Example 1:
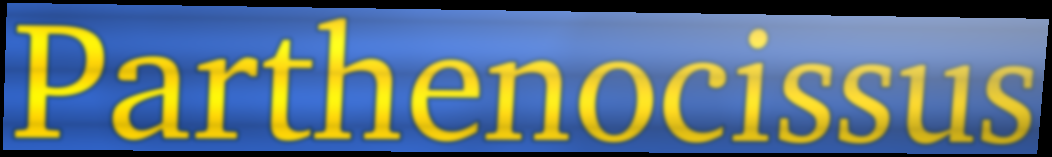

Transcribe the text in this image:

Parthenocissus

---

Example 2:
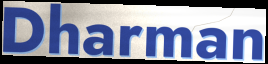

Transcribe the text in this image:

Dharman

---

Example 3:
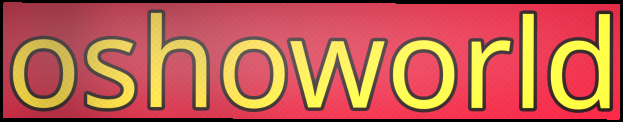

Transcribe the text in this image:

oshoworld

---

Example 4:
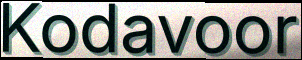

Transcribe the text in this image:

Kodavoor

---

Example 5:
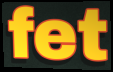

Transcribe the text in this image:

fet